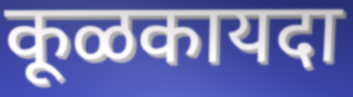
कूळकायदा